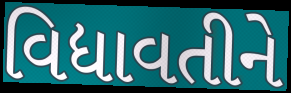
વિદ્યાવતીને